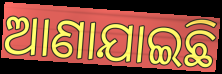
ଆଣାଯାଇଛି